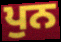
ਪੁਨ